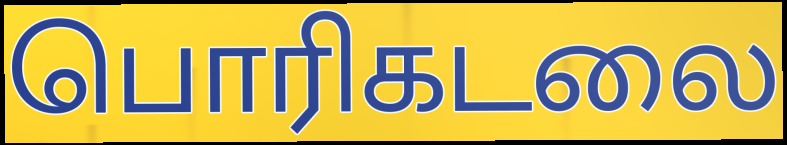
பொரிகடலை